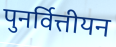
पुनर्वित्तीयन